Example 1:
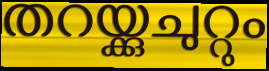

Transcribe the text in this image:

തറയ്ക്കുചുറ്റും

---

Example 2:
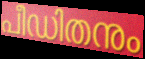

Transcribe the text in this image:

പീഡിതനും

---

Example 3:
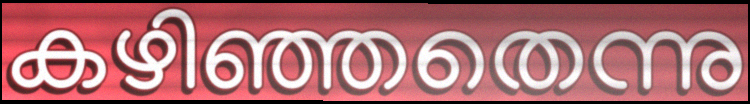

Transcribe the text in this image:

കഴിഞ്ഞതെന്നു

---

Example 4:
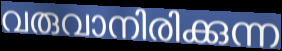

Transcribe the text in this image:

വരുവാനിരിക്കുന്ന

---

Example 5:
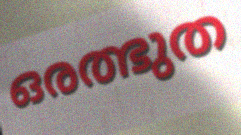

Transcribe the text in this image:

ഒരത്ഭുത